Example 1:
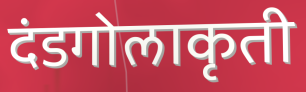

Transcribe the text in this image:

दंडगोलाकृती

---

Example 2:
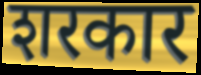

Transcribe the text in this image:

शरकार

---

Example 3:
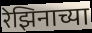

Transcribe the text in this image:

रेझिनाच्या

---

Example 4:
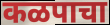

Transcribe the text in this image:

कळपाचा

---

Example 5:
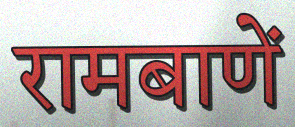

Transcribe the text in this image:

रामबाणें